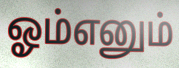
ஓம்எனும்